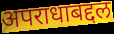
अपराधाबद्दल